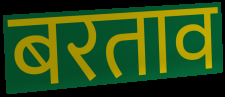
बरताव